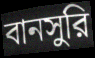
বানসুরি